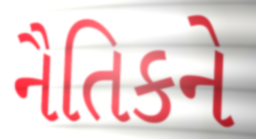
નૈતિકને